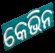
କେଭିନ